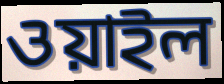
ওয়াইল